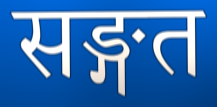
सङ्गत